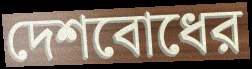
দেশবোধের